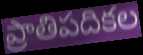
ప్రాతిపదికల